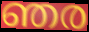
ഞര